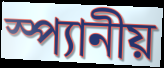
স্প্যানীয়